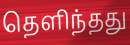
தெளிந்தது